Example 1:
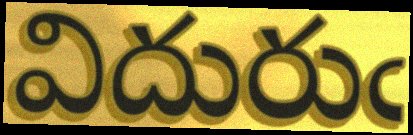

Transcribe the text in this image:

విదురుఁ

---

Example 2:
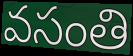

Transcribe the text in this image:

వసంతి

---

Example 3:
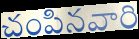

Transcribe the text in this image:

చంపినవారి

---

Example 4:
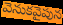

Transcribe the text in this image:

వెనుకవైపున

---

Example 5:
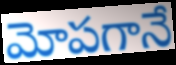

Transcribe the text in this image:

మోపగానే